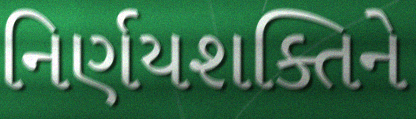
નિર્ણયશક્તિને